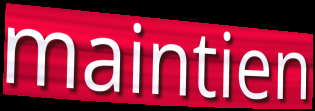
maintien